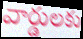
వార్డులకు